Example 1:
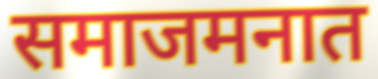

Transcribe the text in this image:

समाजमनात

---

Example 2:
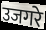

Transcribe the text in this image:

उजगरे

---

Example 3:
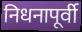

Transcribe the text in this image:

निधनापूर्वी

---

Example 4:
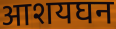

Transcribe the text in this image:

आशयघन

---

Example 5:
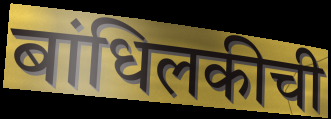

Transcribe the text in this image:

बांधिलकीची